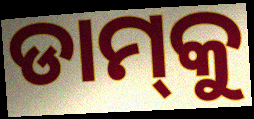
ଡାମ୍‍କୁ